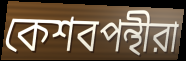
কেশবপন্থীরা